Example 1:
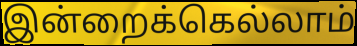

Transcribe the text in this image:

இன்றைக்கெல்லாம்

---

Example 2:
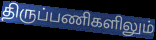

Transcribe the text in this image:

திருப்பணிகளிலும்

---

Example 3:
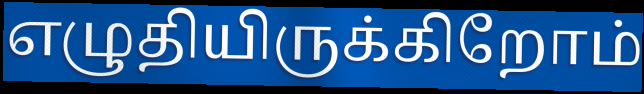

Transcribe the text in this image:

எழுதியிருக்கிறோம்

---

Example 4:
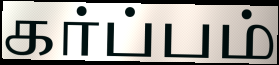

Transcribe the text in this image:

கர்ப்பம்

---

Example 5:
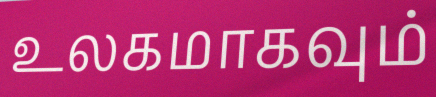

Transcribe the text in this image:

உலகமாகவும்